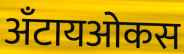
अँटायओकस